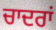
ਚਾਦਰਾਂ